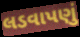
લડવાપણું